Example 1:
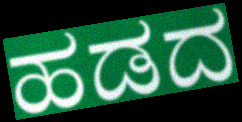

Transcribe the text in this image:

ಹಡದ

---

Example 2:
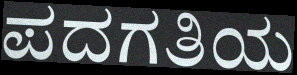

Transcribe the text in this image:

ಪದಗತಿಯ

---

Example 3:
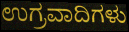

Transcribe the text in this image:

ಉಗ್ರವಾದಿಗಳು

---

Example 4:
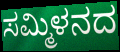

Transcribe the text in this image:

ಸಮ್ಮಿಳನದ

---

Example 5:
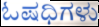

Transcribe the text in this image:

ಓಷಧಿಗಳು